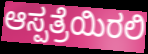
ಆಸ್ಪತ್ರೆಯಿರಲಿ